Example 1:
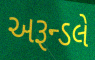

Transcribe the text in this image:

અરૂન્ડલે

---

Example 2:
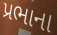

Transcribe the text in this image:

પ્રભાના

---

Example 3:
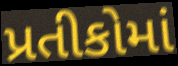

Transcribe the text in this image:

પ્રતીકોમાં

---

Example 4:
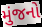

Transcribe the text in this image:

મુંજનો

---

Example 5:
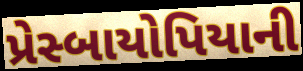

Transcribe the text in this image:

પ્રેસ્બાયોપિયાની